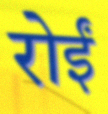
रोईं